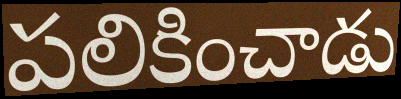
పలికించాడు